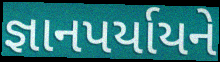
જ્ઞાનપર્યાયને